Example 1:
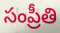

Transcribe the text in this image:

సంప్రీతి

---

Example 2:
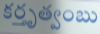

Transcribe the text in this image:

కర్తృత్వంబు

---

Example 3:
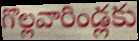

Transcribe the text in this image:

గొల్లవారిండ్లకు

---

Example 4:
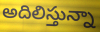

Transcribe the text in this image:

అదిలిస్తున్నా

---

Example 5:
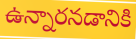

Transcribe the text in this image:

ఉన్నారనడానికి